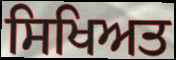
ਸਿਖਿਅਤ